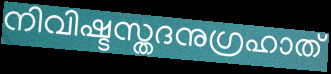
നിവിഷ്ടസ്തദനുഗ്രഹാത്